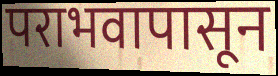
पराभवापासून